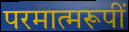
परमात्मरूपीं